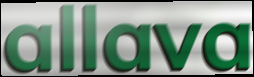
allava